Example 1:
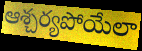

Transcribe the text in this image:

ఆశ్చర్యపోయేలా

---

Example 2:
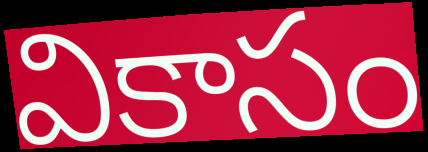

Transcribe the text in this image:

వికాసం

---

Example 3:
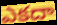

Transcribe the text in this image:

ఎకదా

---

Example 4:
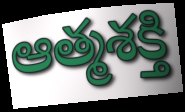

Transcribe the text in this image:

ఆత్మశక్తి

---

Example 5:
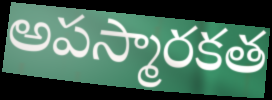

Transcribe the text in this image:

అపస్మారకత